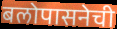
बलोपासनेची